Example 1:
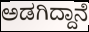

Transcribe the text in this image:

ಅಡಗಿದ್ದಾನೆ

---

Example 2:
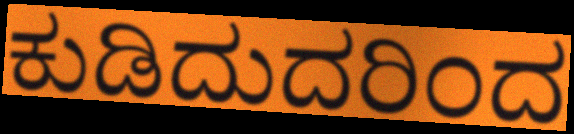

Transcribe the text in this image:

ಕುಡಿದುದರಿಂದ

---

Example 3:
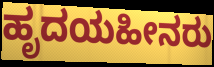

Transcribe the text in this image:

ಹೃದಯಹೀನರು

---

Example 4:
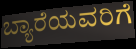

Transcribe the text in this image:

ಬ್ಯಾರೆಯವರಿಗೆ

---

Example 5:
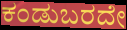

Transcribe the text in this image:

ಕಂಡುಬರದೇ